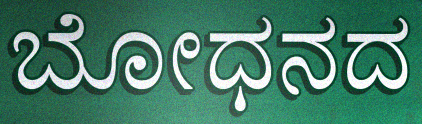
ಬೋಧನದ